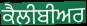
ਕੈਲੀਬੀਅਰ